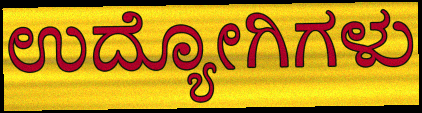
ಉದ್ಯೋಗಿಗಳು